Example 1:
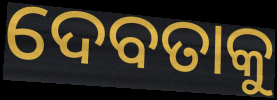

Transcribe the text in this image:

ଦେବତାକୁ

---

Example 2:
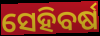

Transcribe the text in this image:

ସେହିବର୍ଷ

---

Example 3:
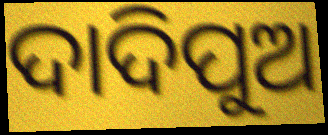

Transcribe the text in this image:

ଦାଦିପୁଅ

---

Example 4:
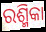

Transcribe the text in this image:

ରଶ୍ମିକା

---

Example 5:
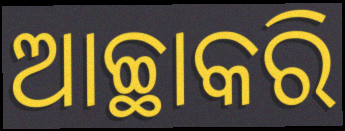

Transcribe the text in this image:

ଆଚ୍ଛାକରି